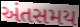
અંતસમય